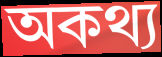
অকথ্য